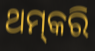
ଥମ୍‌କରି